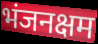
भंजनक्षम